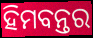
ହିମବନ୍ତର